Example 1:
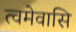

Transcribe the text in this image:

त्वमेवासि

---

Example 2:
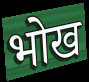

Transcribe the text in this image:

भोख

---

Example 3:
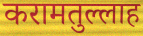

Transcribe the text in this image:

करामतुल्लाह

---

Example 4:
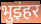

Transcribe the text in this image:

भुइंहर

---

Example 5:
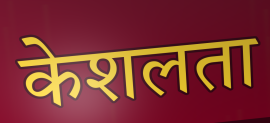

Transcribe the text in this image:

केशलता